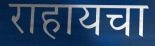
राहायचा